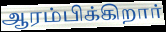
ஆரம்பிக்கிறார்